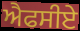
ਐਫਸੀਏ